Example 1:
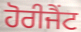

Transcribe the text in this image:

ਹੋਰੀਜੈਂਟ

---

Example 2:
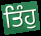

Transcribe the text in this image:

ਤਿੰਹੁ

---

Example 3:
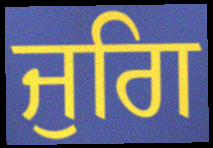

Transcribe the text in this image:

ਜੁਗਿ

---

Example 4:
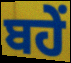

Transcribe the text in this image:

ਬਹੇਂ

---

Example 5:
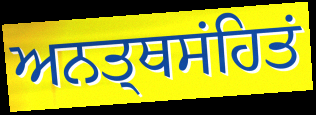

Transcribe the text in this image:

ਅਨਤ੍ਥਸਂਹਿਤਂ